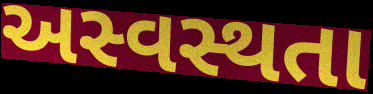
અસ્વસ્થતા